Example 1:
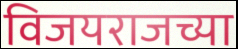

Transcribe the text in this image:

विजयराजच्या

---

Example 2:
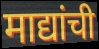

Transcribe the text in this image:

माद्यांची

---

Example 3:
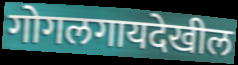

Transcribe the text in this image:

गोगलगायदेखील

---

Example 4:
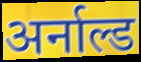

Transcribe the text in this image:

अर्नाल्ड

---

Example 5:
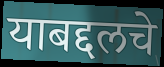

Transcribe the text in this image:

याबद्दलचे